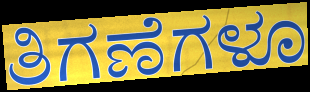
ತಿಗಣೆಗಳೂ